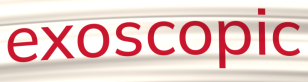
exoscopic